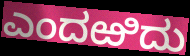
ಎಂದಱಿದು